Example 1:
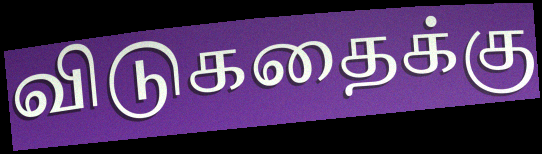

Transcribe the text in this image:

விடுகதைக்கு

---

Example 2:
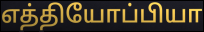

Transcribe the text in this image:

எத்தியோப்பியா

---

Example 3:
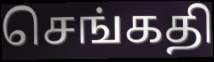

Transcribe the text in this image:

செங்கதி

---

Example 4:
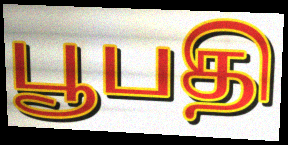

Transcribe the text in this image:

பூபதி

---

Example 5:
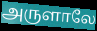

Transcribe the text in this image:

அருளாலே